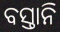
ବସ୍ତାନି